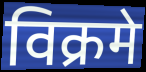
विक्रमे